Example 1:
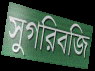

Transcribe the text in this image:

সুগরিবজি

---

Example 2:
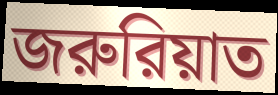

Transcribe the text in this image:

জরুরিয়াত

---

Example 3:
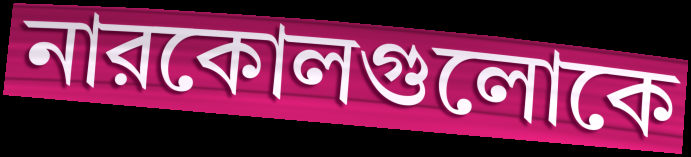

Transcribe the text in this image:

নারকোলগুলোকে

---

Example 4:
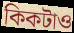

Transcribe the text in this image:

কিকটাও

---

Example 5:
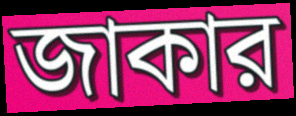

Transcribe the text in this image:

জাকার